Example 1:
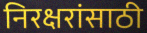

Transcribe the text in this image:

निरक्षरांसाठी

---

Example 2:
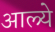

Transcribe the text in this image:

आल्ये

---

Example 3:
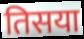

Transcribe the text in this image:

तिसया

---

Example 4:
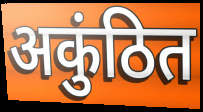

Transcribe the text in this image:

अकुंठित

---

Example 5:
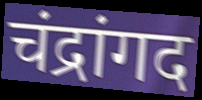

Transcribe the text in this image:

चंद्रांगद